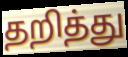
தறித்து